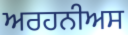
ਅਰਹਨੀਅਸ